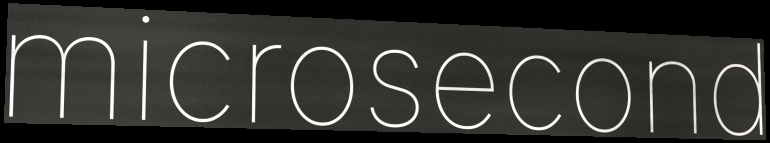
microsecond